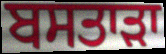
ਬਸਤਾੜਾ